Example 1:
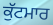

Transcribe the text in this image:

ਕੁੱਟਮਾਰ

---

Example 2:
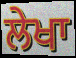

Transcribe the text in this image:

ਲੇਖਾ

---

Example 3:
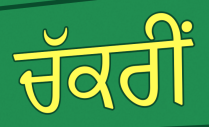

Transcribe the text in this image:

ਚੱਕਰੀਂ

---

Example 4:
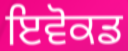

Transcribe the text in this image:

ਇਵੋਕਡ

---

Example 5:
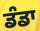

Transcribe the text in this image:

ਡੰਡਾ